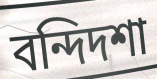
বন্দিদশা